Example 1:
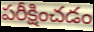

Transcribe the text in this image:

పరీక్షించడం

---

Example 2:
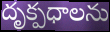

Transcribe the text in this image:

దృక్పధాలను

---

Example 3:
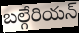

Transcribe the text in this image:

బల్గేరియన్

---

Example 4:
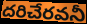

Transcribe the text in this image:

దరిచేరవనీ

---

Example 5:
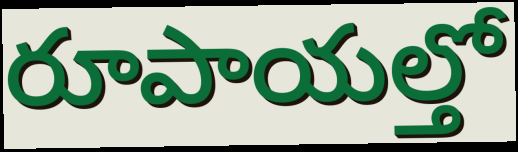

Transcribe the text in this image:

రూపాయల్తో